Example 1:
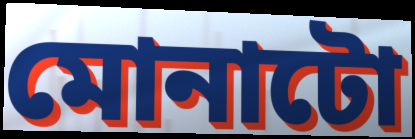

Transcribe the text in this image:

মোনাটো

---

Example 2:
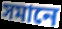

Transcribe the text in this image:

সমানে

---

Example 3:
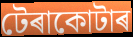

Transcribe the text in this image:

টেৰাকোটাৰ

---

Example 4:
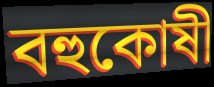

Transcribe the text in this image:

বহুকোষী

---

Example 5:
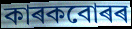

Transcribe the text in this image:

কাৰকবোৰৰ